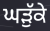
ਘੜੁੱਕੇ